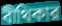
বীথিকার